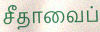
சீதாவைப்